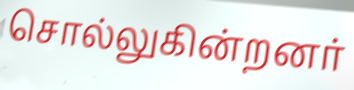
சொல்லுகின்றனர்